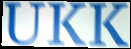
UKK